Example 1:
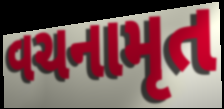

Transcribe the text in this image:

વચનામૃત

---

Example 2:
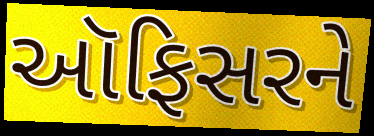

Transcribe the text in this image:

ઑફિસરને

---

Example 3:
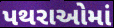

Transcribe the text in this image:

પથરાઓમાં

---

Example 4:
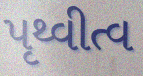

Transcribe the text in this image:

પૃથ્વીત્વ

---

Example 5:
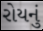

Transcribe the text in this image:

રોયનું